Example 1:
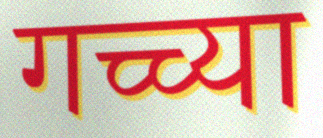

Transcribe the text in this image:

गच्च्या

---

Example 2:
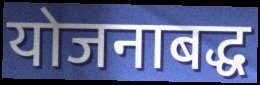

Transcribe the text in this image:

योजनाबद्ध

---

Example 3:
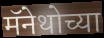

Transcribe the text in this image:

मॅनेथोच्या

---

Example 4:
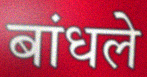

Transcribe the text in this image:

बांधले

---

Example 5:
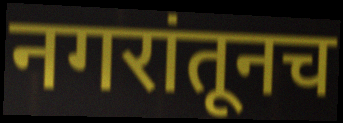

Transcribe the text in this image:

नगरांतूनच